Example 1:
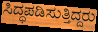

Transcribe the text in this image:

ಸಿದ್ಧಪಡಿಸುತ್ತಿದ್ದರು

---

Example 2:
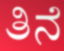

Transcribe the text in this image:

ತಿನೆ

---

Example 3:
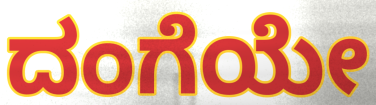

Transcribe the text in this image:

ದಂಗೆಯೇ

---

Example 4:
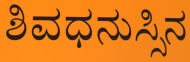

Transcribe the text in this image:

ಶಿವಧನುಸ್ಸಿನ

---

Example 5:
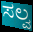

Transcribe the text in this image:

ಸಲ್ವ